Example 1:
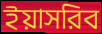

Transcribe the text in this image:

ইয়াসরিব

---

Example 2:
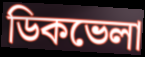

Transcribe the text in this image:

ডিকভেলা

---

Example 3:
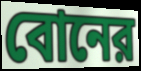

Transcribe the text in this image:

বোনের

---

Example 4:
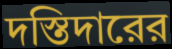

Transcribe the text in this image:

দস্তিদারের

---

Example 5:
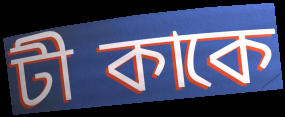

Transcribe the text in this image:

টীকাকে